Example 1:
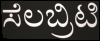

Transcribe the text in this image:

ಸೆಲಬ್ರಿಟಿ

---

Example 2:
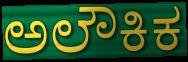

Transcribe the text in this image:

ಅಲೌಕಿಕ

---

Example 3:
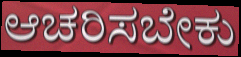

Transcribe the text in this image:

ಆಚರಿಸಬೇಕು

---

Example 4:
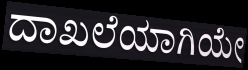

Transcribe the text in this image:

ದಾಖಲೆಯಾಗಿಯೇ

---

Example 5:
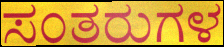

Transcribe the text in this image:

ಸಂತರುಗಳ